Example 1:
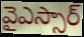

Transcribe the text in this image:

వైఎస్సార్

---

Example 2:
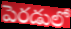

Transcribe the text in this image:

పెరడులో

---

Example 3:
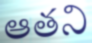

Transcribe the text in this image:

ఆతని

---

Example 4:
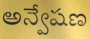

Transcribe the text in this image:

అన్వేషణ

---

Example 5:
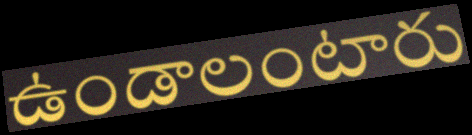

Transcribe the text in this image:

ఉండాలంటారు